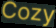
Cozy